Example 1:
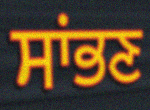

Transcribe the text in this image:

ਸਾਂਭਣ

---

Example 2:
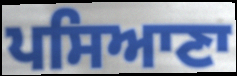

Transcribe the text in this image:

ਪਸਿਆਣਾ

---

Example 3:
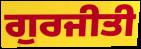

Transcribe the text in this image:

ਗੁਰਜੀਤੀ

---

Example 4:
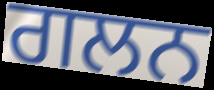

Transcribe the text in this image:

ਗਲਨ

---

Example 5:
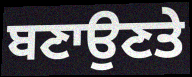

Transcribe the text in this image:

ਬਣਾਉਣਤੇ